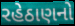
રહેઠાણનો